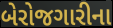
બેરોજગારીના